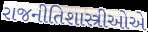
રાજનીતિશાસ્ત્રીઓએ